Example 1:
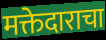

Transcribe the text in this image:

मक्तेदाराचा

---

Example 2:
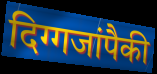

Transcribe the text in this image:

दिग्गजांपैकी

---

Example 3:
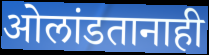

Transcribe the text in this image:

ओलांडतानाही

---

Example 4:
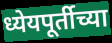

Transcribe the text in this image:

ध्येयपूर्तीच्या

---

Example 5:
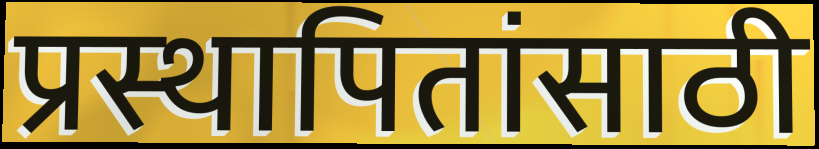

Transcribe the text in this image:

प्रस्थापितांसाठी